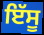
ਇੱਸੂ